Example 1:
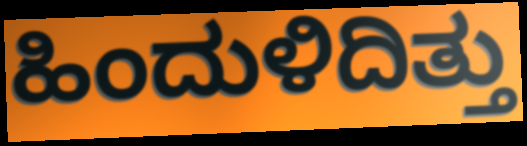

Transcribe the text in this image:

ಹಿಂದುಳಿದಿತ್ತು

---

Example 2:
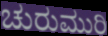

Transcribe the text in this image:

ಚುರುಮುರಿ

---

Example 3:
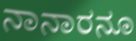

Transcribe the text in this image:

ನಾನಾರನೂ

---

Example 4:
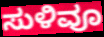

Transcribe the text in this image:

ಸುಳಿವೂ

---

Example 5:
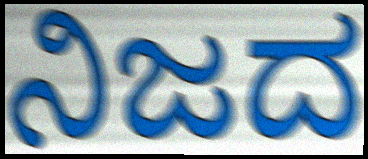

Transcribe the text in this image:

ನಿಜದ